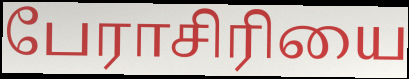
பேராசிரியை